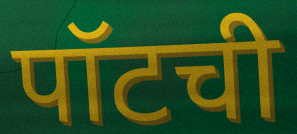
पॉटची